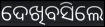
ଦେଖିବସିଲେ